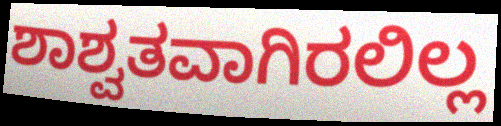
ಶಾಶ್ವತವಾಗಿರಲಿಲ್ಲ